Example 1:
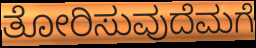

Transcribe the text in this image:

ತೋರಿಸುವುದೆಮಗೆ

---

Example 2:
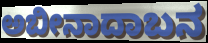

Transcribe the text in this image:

ಅಬೀನಾದಾಬನ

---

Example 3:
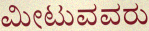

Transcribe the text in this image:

ಮೀಟುವವರು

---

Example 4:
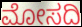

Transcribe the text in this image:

ಮೋಸದಿ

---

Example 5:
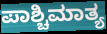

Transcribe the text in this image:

ಪಾಶ್ಚಿಮಾತ್ಯ